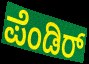
ಪೆಂಡಿರ್